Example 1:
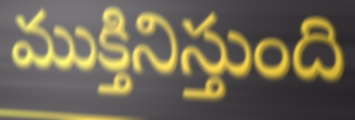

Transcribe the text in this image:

ముక్తినిస్తుంది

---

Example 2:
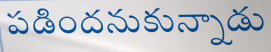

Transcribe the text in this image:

పడిందనుకున్నాడు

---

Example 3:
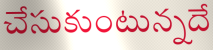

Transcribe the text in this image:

చేసుకుంటున్నదే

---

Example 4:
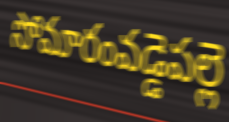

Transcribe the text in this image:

సోమారంవడ్డెపల్లె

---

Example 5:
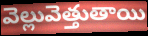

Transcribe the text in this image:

వెల్లువెత్తుతాయి